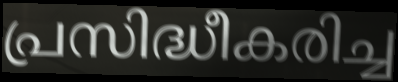
പ്രസിദ്ധീകരിച്ച